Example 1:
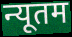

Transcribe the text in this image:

न्यूतम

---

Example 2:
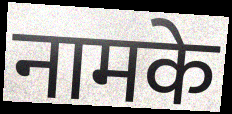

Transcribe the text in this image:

नामके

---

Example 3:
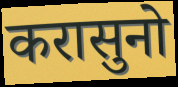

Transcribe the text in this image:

करासुनो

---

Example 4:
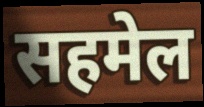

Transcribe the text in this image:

सहमेल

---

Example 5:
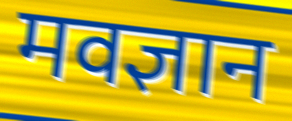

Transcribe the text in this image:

मवज्ञान